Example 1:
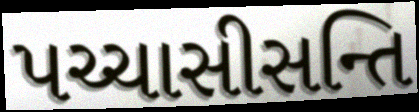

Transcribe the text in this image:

પચ્ચાસીસન્તિ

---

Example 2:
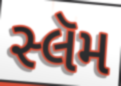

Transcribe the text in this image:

સ્લૅમ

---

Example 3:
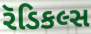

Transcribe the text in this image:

રૅડિકલ્સ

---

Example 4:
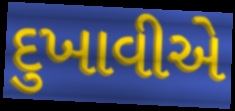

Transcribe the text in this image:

દુખાવીએ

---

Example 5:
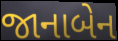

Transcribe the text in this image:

જાનાબેન